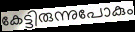
കേട്ടിരുന്നുപോകും